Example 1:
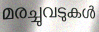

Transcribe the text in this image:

മരച്ചുവടുകൾ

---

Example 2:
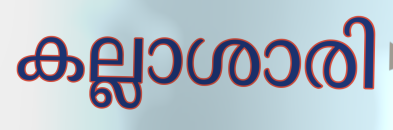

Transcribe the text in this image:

കല്ലാശാരി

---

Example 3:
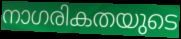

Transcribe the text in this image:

നാഗരികതയുടെ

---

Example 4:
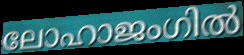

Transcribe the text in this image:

ലോഹാജംഗിൽ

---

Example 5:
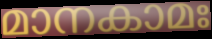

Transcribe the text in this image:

മാനകാമഃ